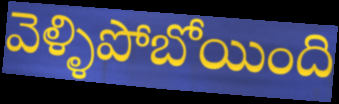
వెళ్ళిపోబోయింది